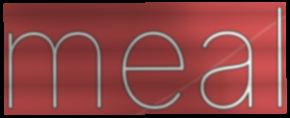
meal